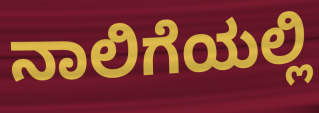
ನಾಲಿಗೆಯಲ್ಲಿ